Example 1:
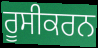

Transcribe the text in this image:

ਰੂਸੀਕਰਨ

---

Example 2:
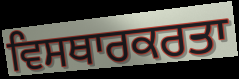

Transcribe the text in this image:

ਵਿਸਥਾਰਕਰਤਾ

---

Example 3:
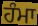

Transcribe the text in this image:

ਹੰਮਾ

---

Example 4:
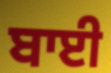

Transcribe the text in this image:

ਬਾਈ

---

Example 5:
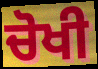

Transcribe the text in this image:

ਚੋਖੀ